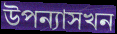
উপন্যাসখন